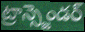
ట్రాన్స్జెండర్